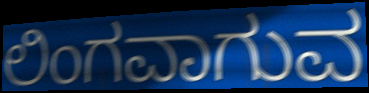
ಲಿಂಗವಾಗುವ